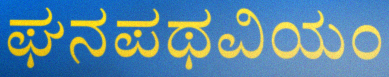
ಘನಪಥವಿಯಂ